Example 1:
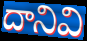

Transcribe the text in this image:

దానివి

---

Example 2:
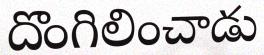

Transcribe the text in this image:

దొంగిలించాడు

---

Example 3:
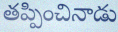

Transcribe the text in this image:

తప్పించినాడు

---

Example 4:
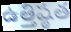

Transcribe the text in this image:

ఉత్తిష్ఠత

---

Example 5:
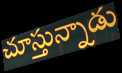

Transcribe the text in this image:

చూస్తున్నాడు